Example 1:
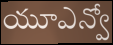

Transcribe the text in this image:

యూఎన్వో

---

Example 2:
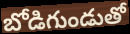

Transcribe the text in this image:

బోడిగుండుతో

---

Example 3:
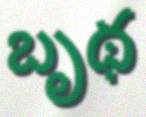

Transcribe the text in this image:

బృథ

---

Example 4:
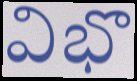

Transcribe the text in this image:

విభొ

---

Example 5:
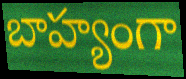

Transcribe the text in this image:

బాహ్యంగా